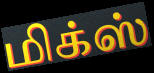
மிக்ஸ்